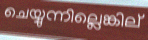
ചെയ്യുന്നില്ലെങ്കില്